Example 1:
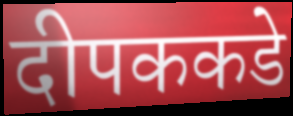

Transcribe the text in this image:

दीपककडे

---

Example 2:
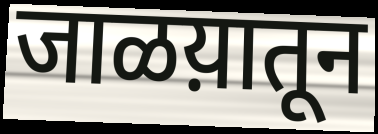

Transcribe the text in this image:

जाळय़ातून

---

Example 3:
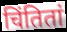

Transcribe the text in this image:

चिंतितां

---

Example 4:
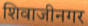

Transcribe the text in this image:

शिवाजीनगर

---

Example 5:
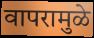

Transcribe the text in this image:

वापरामुळे